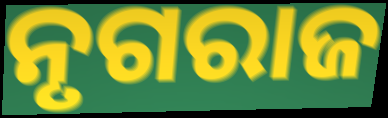
ନୃଗରାଜ